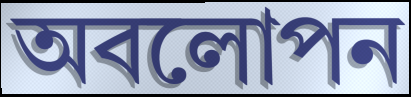
অবলোপন